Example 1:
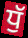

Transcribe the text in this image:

ਧੁੱ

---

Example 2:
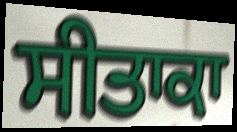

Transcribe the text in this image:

ਸੀਤਾਕਾ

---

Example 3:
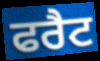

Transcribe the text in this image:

ਫਰੈਟ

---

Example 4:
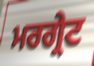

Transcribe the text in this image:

ਮਰਗ੍ਰੇਟ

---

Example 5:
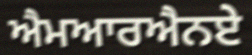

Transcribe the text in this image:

ਐਮਆਰਐਨਏ